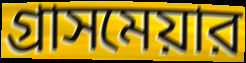
গ্রাসমেয়ার